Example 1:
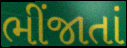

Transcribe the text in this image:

ભીંજાતાં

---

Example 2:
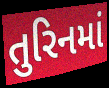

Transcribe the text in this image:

તુરિનમાં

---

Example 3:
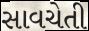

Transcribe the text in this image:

સાવચેતી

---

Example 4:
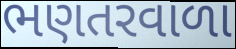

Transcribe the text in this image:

ભણતરવાળા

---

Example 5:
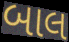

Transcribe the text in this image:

બાલ